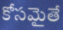
కోసమైతే